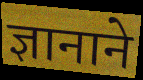
ज्ञानाने